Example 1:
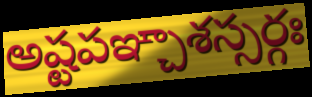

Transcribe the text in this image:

అష్టపఞ్చాశస్సర్గః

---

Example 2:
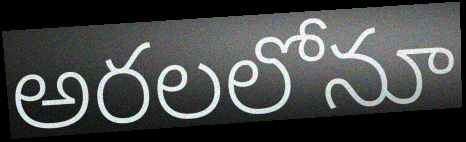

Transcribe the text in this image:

అరలలోనూ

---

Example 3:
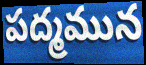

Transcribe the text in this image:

పద్మమున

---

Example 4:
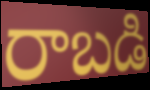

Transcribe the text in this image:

రాబడి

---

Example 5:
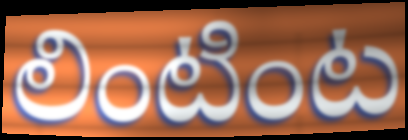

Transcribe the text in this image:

లింటింట